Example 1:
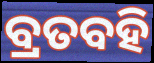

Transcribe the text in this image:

ବ୍ରତବହି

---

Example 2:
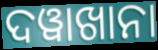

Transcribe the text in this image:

ଦୱାଖାନା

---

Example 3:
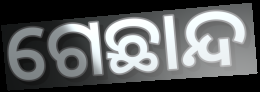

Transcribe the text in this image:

ଗେଛାନ୍ଦ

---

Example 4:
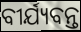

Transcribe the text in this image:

ବୀର୍ଯ୍ୟବନ୍ତ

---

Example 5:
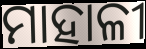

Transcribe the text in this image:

ମାହାଳୀ